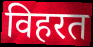
विहरत